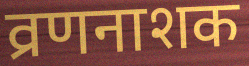
व्रणनाशक